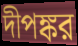
দীপঙ্কর